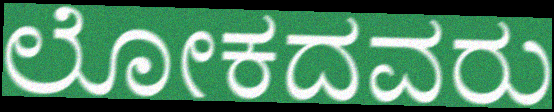
ಲೋಕದವರು